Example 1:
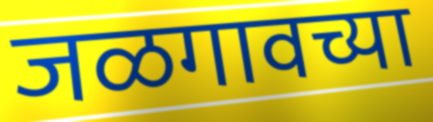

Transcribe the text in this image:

जळगावच्या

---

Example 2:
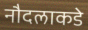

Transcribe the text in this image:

नौदलाकडे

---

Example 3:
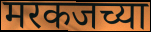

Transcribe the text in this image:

मरकजच्या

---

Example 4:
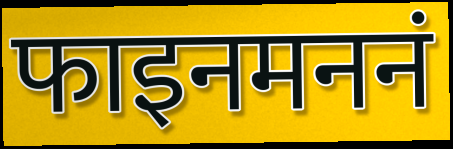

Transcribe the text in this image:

फाइनमननं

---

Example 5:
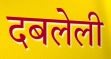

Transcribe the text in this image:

दबलेली